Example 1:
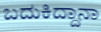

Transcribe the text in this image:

ಬದುಕಿದ್ದಾನಾ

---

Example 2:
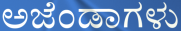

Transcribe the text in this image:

ಅಜೆಂಡಾಗಳು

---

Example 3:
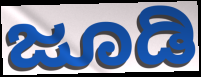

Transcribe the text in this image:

ಜೂಡಿ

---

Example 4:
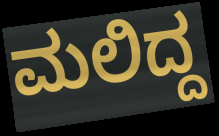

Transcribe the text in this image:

ಮಲಿದ್ದ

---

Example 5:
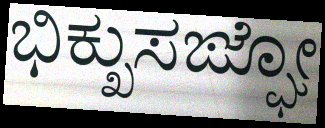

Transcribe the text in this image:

ಭಿಕ್ಖುಸಙ್ಘೋ